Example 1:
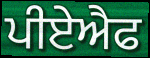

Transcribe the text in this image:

ਪੀਏਐਫ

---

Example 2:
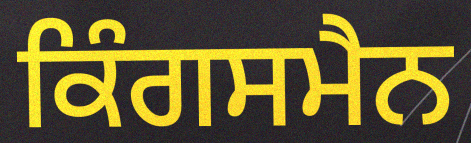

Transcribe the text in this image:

ਕਿੰਗਸਮੈਨ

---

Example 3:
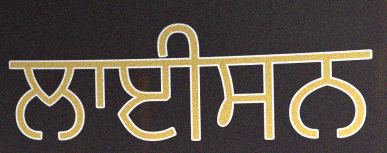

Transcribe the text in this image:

ਲਾਈਸਨ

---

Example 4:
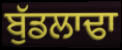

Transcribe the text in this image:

ਬੁੱਡਲਾਢਾ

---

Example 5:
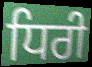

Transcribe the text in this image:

ਧਿਰੀ